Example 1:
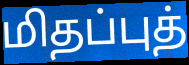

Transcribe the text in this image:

மிதப்புத்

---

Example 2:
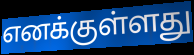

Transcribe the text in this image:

எனக்குள்ளது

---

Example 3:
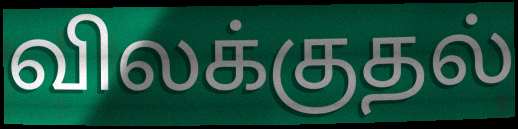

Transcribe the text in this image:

விலக்குதல்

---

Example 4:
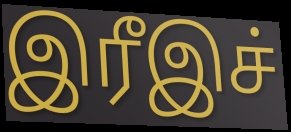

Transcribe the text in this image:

இரீஇச்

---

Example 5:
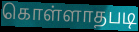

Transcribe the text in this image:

கொள்ளாதபடி